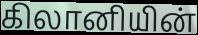
கிலானியின்